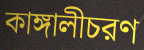
কাঙ্গালীচরণ